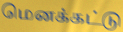
மெனக்கட்டு